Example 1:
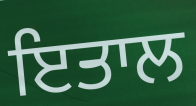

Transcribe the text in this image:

ਇਤਾਲ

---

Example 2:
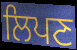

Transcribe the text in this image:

ਲਿਪਣ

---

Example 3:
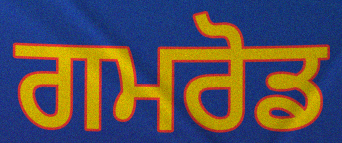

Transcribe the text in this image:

ਗਮਰੋਡ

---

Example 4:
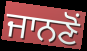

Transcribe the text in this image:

ਜਾਨਣੋਂ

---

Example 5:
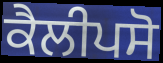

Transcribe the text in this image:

ਕੈਲੀਪਸੋ